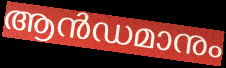
ആൻഡമാനും